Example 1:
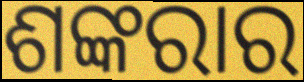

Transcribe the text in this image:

ଶଙ୍କରାର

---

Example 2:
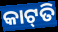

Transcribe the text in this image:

କାଟ୍‍ତି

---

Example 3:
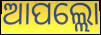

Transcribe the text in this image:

ଆପଲ୍ଲୋ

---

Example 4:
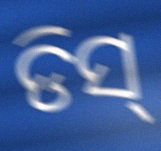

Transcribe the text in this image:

ଡିସ୍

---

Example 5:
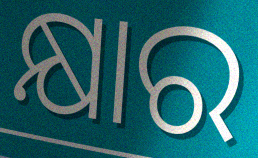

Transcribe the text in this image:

କ୍ଷାର